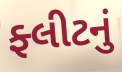
ફ્લીટનું